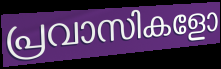
പ്രവാസികളോ